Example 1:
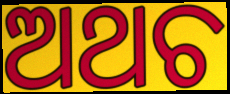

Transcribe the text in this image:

ଅଥଚ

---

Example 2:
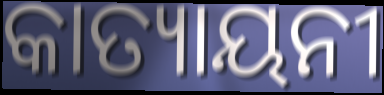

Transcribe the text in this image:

କାତ୍ୟାୟନୀ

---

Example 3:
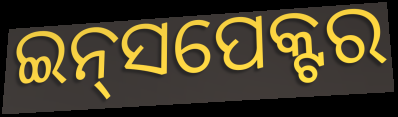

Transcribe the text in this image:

ଇନ୍‍ସପେକ୍ଟର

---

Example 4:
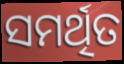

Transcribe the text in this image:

ସମର୍ଥିତ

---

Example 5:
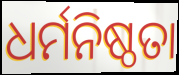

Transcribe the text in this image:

ଧର୍ମନିଷ୍ଠତା